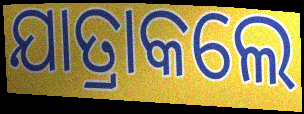
ଯାତ୍ରାକଲେ